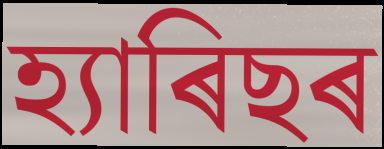
হ্যাৰিছৰ